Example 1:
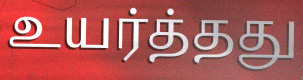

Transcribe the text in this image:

உயர்த்தது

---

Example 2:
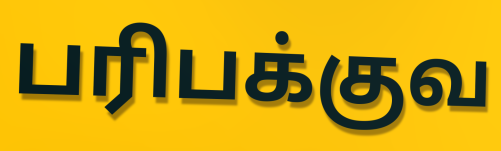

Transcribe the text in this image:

பரிபக்குவ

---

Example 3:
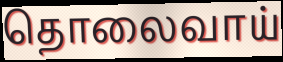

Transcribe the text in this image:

தொலைவாய்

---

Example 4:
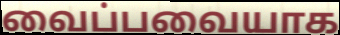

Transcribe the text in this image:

வைப்பவையாக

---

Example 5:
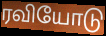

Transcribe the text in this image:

ரவியோடு